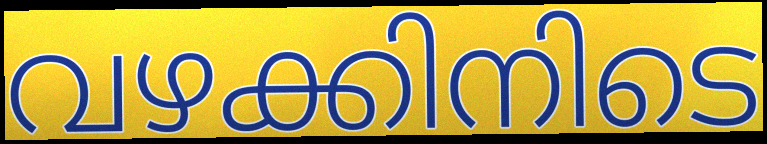
വഴക്കിനിടെ